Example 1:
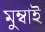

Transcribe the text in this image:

মুম্বাই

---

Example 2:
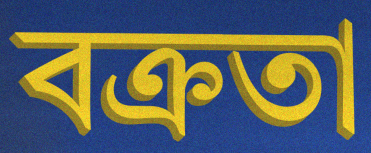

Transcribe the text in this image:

বক্ৰতা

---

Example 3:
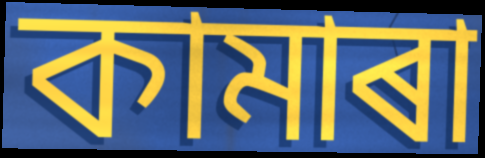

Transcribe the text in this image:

কামাৰা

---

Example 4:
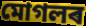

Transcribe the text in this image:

মোগলৰ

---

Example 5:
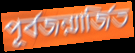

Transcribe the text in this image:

পূৰ্বজন্মাৰ্জিত